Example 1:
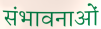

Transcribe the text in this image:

संभावनाओं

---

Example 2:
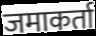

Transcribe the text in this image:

जमाकर्ता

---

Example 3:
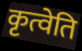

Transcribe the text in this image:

कृत्वेति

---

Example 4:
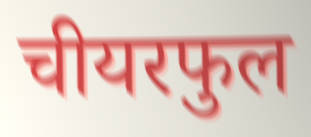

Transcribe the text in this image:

चीयरफुल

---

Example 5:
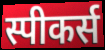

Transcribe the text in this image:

स्पीकर्स